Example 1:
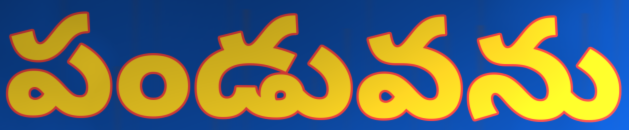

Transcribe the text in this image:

పండువను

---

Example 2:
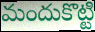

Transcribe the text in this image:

మందుకొట్టి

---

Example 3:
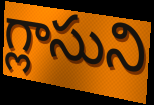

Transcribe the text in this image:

గ్లాసుని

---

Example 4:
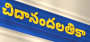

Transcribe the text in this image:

చిదానందలతికా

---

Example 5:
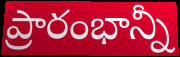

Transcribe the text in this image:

ప్రారంభాన్నీ